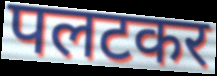
पलटकर